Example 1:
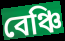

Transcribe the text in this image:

বেঞ্চি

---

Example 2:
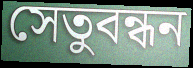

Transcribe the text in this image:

সেতুবন্ধন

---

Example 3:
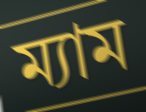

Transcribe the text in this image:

ম্যাম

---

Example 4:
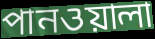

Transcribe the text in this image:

পানওয়ালা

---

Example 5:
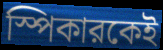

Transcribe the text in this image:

স্পিকারকেই